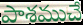
పాశముచే